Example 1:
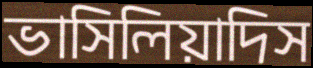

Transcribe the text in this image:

ভাসিলিয়াদিস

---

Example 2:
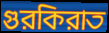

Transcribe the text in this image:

গুরকিরাত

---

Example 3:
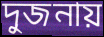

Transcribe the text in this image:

দুজনায়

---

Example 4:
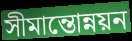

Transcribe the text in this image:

সীমান্তোন্নয়ন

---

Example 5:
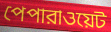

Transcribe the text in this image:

পেপারাওয়েট